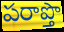
పరాప్తొ